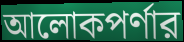
আলোকপর্ণার